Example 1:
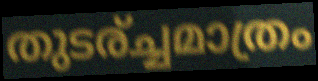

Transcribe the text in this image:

തുടര്ച്ചമാത്രം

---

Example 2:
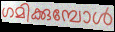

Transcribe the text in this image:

ഗമിക്കുമ്പോൾ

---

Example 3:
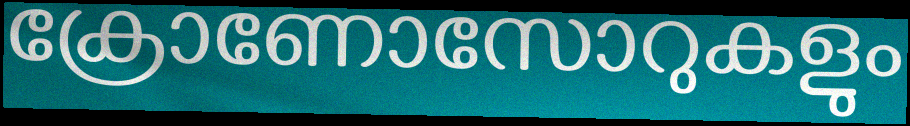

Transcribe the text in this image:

ക്രോണോസോറുകളും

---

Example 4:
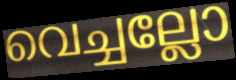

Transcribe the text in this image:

വെച്ചല്ലോ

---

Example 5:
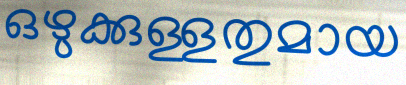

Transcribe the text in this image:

ഒഴുക്കുള്ളതുമായ